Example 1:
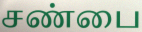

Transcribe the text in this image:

சண்பை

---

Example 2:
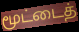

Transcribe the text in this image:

மூட்டைத்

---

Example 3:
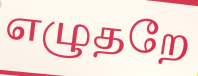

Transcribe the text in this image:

எழுதறே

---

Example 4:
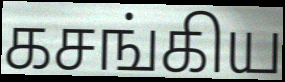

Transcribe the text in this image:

கசங்கிய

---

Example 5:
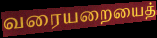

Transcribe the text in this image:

வரையறையைத்